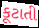
કૂટાતી